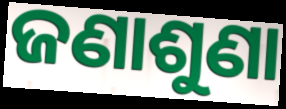
ଜଣାଶୁଣା